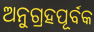
ଅନୁଗ୍ରହପୂର୍ବକ